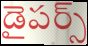
డైపర్స్